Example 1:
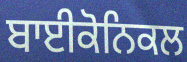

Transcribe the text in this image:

ਬਾਈਕੋਨਿਕਲ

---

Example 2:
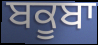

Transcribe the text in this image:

ਬਕੂਬਾ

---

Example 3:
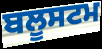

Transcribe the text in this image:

ਬਲੂਸਟਮ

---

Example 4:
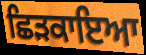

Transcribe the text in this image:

ਛਿੜਕਾਇਆ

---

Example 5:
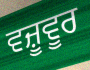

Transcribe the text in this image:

ਵਜ਼ੂਵੂਰ